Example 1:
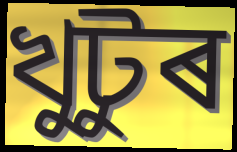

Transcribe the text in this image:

খুটুৰ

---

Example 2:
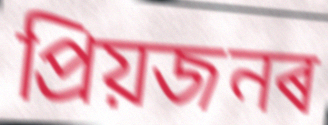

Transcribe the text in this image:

প্ৰিয়জনৰ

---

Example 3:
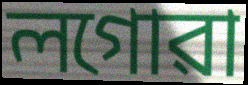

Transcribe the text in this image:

লগোৱা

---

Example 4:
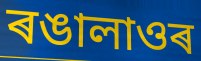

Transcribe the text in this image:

ৰঙালাওৰ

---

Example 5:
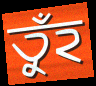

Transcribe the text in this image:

তুঁহ